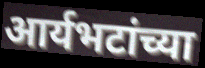
आर्यभटांच्या